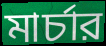
মার্চার